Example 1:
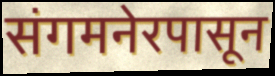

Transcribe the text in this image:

संगमनेरपासून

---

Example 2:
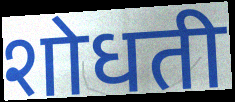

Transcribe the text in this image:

शोधती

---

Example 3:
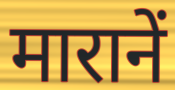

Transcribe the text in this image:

मारानें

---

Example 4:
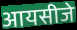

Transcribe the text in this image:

आयसीजे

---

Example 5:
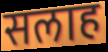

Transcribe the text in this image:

सलाह